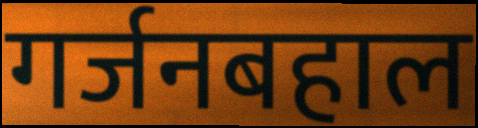
गर्जनबहाल